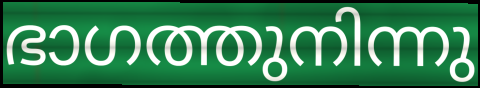
ഭാഗത്തുനിന്നു